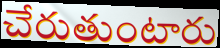
చేరుతుంటారు